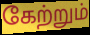
கேற்றும்